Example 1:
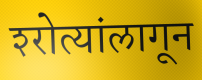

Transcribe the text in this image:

श्रोत्यांलागून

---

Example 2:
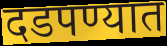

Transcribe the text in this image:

दडपण्यात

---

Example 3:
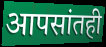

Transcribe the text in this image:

आपसांतही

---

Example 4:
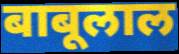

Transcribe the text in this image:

बाबूलाल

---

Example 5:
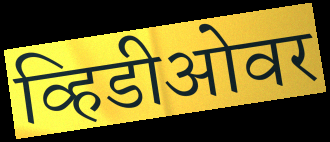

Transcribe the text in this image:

व्हिडीओवर